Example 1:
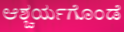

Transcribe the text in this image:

ಆಶ್ಚರ್ಯಗೊಂಡೆ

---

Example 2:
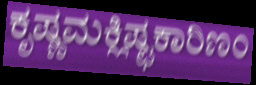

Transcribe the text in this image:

ಕೃಷ್ಣಮಕ್ಲಿಷ್ಟಕಾರಿಣಂ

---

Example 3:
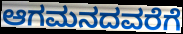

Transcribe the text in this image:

ಆಗಮನದವರೆಗೆ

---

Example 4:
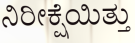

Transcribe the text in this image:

ನಿರೀಕ್ಷೆಯಿತ್ತು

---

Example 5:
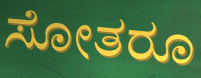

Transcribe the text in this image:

ಸೋತರೂ